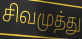
சிவமுத்து